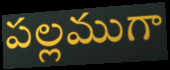
పల్లముగా